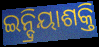
ଇନ୍ଦ୍ରିୟାଶକ୍ତି